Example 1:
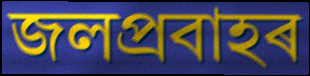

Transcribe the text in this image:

জলপ্ৰবাহৰ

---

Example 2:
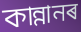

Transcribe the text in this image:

কান্নানৰ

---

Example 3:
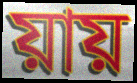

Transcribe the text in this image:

য়ায়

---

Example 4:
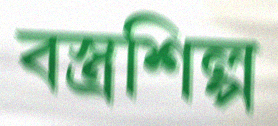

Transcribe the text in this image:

বস্ত্ৰশিল্প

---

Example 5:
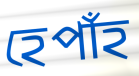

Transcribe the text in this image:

হেপাঁহ